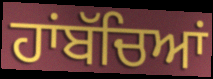
ਹਾਂਬੱਚਿਆਂ